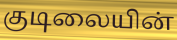
குடிலையின்